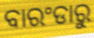
ବାରଂଡାରୁ